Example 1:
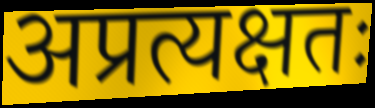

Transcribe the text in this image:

अप्रत्यक्षतः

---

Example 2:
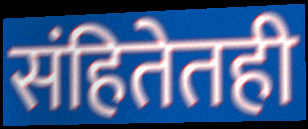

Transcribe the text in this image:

संहितेतही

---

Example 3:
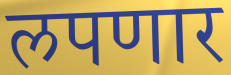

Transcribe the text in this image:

लपणार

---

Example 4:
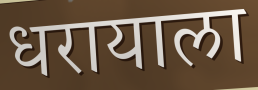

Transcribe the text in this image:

धरायाला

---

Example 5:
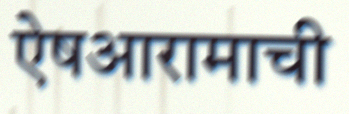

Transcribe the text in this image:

ऐषआरामाची